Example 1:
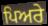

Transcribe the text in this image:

ਪਿਅਰੇ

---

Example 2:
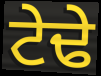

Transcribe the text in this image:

ਟੇਢੇ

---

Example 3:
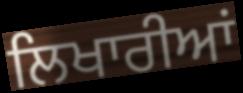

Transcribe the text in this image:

ਲਿਖਾਰੀਆਂ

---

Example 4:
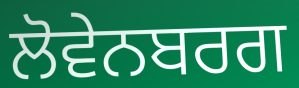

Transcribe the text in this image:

ਲੋਵੇਨਬਰਗ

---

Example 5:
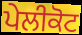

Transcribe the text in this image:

ਪੇਲੀਕੋਟ